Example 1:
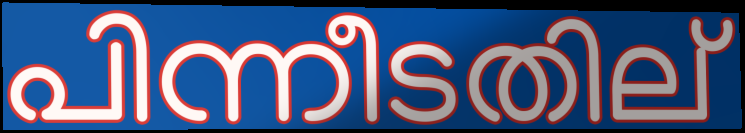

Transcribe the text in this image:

പിന്നീടതില്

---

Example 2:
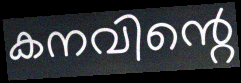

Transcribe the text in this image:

കനവിന്റെ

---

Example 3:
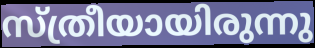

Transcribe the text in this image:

സ്ത്രീയായിരുന്നു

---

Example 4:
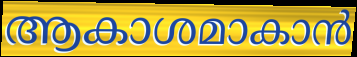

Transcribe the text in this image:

ആകാശമാകാൻ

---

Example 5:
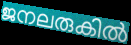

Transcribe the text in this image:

ജനലരുകിൽ